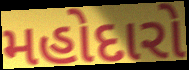
મહોદારો